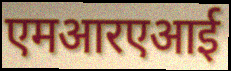
एमआरएआई